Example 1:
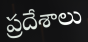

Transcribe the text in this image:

ప్రదేశాలు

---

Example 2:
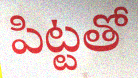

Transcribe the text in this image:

పిట్టతో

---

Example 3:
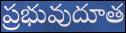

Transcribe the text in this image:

ప్రభువుదూత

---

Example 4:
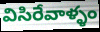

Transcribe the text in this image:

విసిరేవాళ్ళం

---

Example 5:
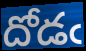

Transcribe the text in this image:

దోడఁ